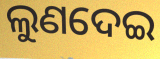
ଲୁଣଦେଇ